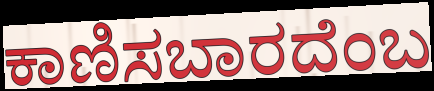
ಕಾಣಿಸಬಾರದೆಂಬ